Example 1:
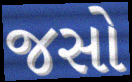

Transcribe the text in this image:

જસો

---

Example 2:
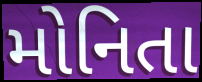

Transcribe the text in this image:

મોનિતા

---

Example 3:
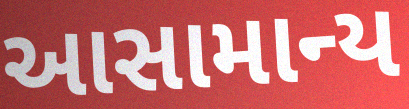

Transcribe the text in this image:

આસામાન્ય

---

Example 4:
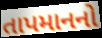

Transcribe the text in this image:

તાપમાનનો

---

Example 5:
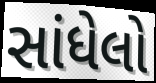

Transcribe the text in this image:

સાંધેલો